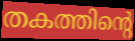
തകത്തിന്റെ